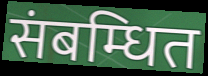
संबम्धित